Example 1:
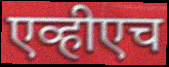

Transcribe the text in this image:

एव्हीएच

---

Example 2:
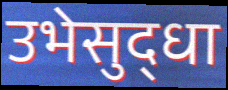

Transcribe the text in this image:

उभेसुद्धा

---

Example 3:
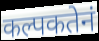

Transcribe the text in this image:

कल्पकतेनं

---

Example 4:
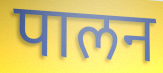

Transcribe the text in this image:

पालन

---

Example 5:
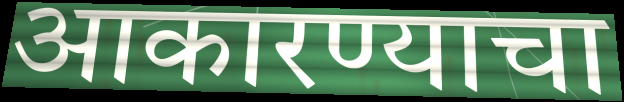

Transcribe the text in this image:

आकारण्याचा